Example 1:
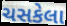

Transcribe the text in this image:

ચસકેલા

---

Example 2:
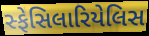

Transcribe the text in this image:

સ્ફેસિલારિયેલિસ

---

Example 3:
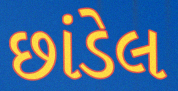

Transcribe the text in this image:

છાંડેલ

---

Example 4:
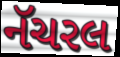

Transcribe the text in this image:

નૅચરલ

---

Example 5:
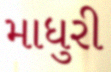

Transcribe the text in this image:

માધુરી